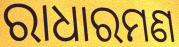
ରାଧାରମଣ